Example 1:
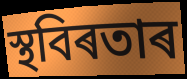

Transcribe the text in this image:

স্থবিৰতাৰ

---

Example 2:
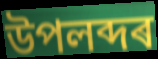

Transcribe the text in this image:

উপলব্দৰ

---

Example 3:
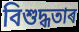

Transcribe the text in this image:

বিশুদ্ধতাৰ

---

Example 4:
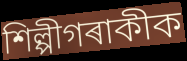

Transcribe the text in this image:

শিল্পীগৰাকীক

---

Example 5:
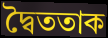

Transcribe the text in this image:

দ্বৈততাক